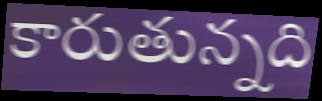
కారుతున్నది